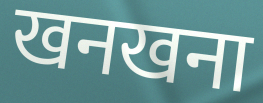
खनखना